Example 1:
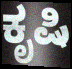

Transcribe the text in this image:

ಕೃಷಿ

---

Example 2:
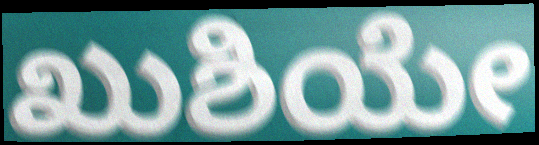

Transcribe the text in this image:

ಖುಶಿಯೇ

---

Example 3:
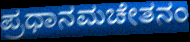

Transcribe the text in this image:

ಪ್ರಧಾನಮಚೇತನಂ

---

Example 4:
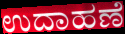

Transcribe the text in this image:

ಉದಾಹಣೆ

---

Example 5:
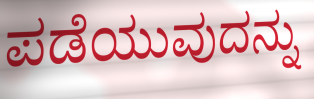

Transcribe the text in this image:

ಪಡೆಯುವುದನ್ನು